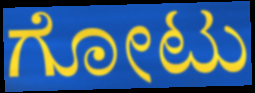
ಗೋಟು